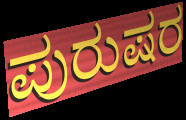
ಪುರುಷರ